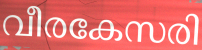
വീരകേസരി